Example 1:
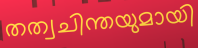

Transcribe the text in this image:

തത്വചിന്തയുമായി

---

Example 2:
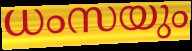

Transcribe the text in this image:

ധംസയും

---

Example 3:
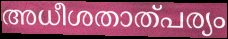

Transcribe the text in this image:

അധീശതാത്പര്യം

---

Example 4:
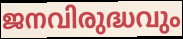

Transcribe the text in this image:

ജനവിരുദ്ധവും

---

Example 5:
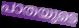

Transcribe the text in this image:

പാതയുടെ